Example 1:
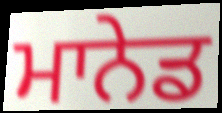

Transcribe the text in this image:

ਮਾਨੇਡ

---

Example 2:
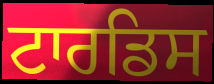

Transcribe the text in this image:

ਟਾਰਡਿਸ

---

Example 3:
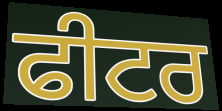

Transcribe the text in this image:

ਫੀਟਰ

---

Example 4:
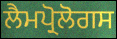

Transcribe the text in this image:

ਲੈਮਪ੍ਰੋਲੋਗਸ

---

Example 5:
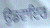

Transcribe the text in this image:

ਉਡਵਾਇਰ